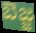
బెజ్జ